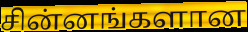
சின்னங்களான